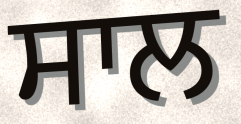
ਸਾਲ